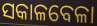
ସକାଳବେଳା